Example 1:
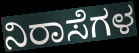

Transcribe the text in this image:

ನಿರಾಸೆಗಳ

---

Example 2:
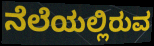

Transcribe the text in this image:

ನೆಲೆಯಲ್ಲಿರುವ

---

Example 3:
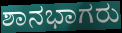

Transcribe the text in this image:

ಶಾನಭಾಗರು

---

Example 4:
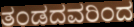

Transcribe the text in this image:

ತಂಡದವರಿಂದ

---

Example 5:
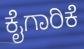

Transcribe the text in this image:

ಕೈಗಾರಿಕೆ